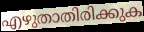
എഴുതാതിരിക്കുക